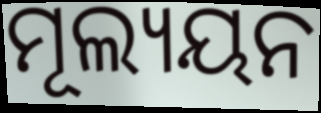
ମୂଲ୍ୟୟନ